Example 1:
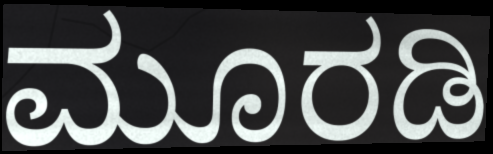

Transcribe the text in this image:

ಮೂರಡಿ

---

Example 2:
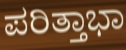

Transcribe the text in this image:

ಪರಿತ್ತಾಭಾ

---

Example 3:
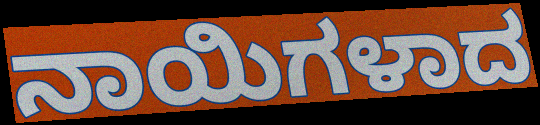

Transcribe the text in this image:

ನಾಯಿಗಳಾದ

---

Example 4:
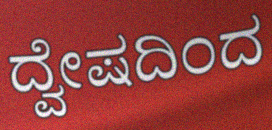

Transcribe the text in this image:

ದ್ವೇಷದಿಂದ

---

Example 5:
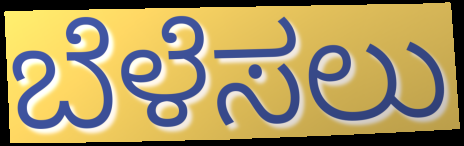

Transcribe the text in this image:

ಬೆಳೆಸಲು